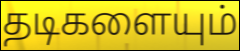
தடிகளையும்